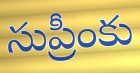
సుప్రీంకు